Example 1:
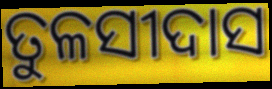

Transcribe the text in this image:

ତୁଳସୀଦାସ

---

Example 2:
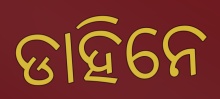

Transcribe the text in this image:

ଡାହିନେ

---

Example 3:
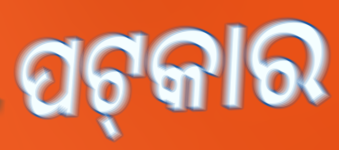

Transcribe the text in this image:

ପଟ୍‌କାର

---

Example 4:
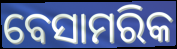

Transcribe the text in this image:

ବେସାମରିକ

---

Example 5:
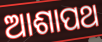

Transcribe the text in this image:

ଆଶାପଥ